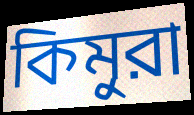
কিমুরা